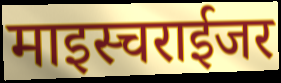
माइस्चराईजर